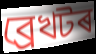
ব্ৰেখটৰ